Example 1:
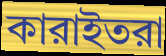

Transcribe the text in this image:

কারাইতরা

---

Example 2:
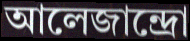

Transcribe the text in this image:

আলেজান্দ্রো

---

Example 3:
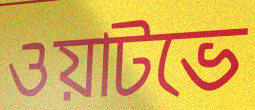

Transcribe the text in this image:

ওয়াটভে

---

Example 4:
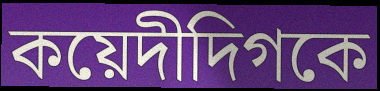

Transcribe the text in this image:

কয়েদীদিগকে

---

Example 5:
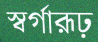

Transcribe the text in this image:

স্বর্গারূঢ়